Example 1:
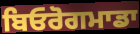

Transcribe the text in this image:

ਬਿਓਰੋਗਮਾਡਾ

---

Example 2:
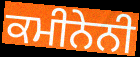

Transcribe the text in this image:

ਕਮੀਨੇਨੀ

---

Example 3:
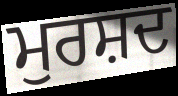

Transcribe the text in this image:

ਮੁਰਸ਼ਦ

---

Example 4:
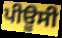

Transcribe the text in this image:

ਪੀਊਸੀ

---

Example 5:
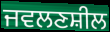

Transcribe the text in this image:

ਜਵਲਣਸ਼ੀਲ